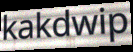
kakdwip